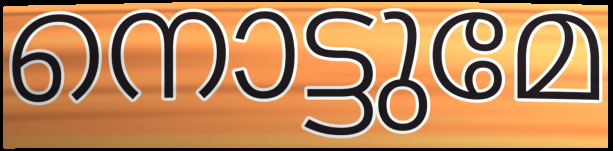
നൊട്ടുമേ